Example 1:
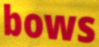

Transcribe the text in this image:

bows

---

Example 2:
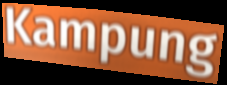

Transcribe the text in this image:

Kampung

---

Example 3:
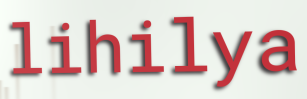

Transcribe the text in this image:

lihilya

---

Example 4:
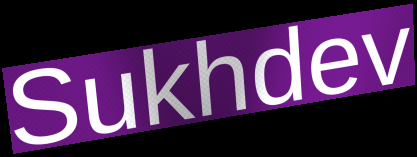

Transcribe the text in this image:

Sukhdev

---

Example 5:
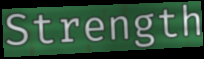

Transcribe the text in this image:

Strength